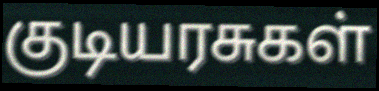
குடியரசுகள்